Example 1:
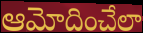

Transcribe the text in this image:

ఆమోదించేలా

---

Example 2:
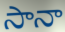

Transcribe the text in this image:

సానా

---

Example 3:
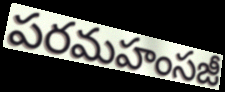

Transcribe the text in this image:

పరమహంసజీ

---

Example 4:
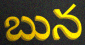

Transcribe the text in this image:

బున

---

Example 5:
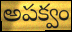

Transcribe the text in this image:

అపక్వం